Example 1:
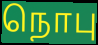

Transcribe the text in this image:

நொபு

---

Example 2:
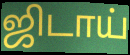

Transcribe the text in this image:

ஜிடாய்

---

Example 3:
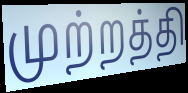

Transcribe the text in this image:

முற்றத்தி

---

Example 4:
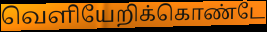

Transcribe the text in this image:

வெளியேறிக்கொண்டே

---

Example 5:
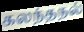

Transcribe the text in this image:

கலந்தநல்